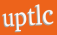
uptlc